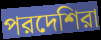
পরদেশিরা